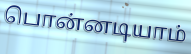
பொன்னடியாம்